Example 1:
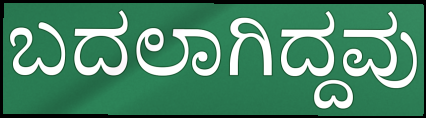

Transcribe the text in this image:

ಬದಲಾಗಿದ್ದವು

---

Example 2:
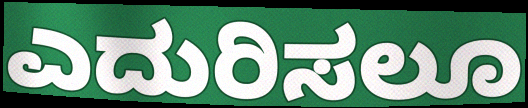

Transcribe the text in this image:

ಎದುರಿಸಲೂ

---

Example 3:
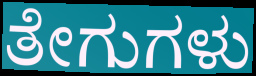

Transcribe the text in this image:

ತೇಗುಗಳು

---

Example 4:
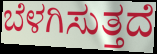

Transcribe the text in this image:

ಬೆಳಗಿಸುತ್ತದೆ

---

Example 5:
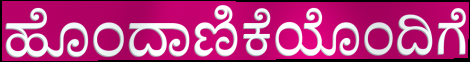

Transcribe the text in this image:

ಹೊಂದಾಣಿಕೆಯೊಂದಿಗೆ